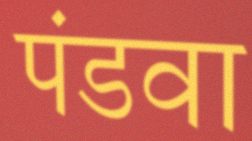
पंडवा